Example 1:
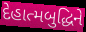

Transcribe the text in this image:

દેહાત્મબુદ્ધિને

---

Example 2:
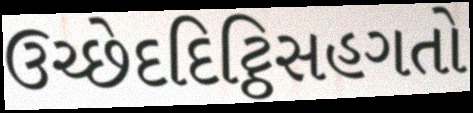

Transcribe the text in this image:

ઉચ્છેદદિટ્ઠિસહગતો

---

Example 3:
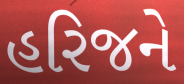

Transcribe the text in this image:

હરિજને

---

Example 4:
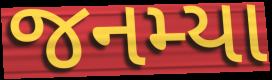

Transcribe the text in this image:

જનમ્યા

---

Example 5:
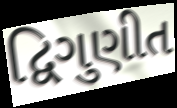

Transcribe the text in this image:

દ્વિગુણીત